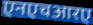
एनएचआरए